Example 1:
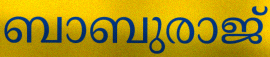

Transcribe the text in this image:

ബാബുരാജ്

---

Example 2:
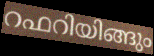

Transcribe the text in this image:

റഫറിയിങ്ങും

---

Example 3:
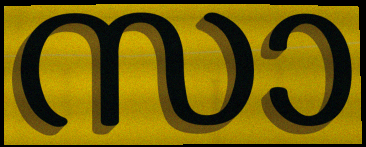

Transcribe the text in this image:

സാ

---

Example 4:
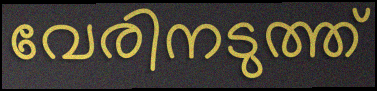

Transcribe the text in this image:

വേരിനടുത്ത്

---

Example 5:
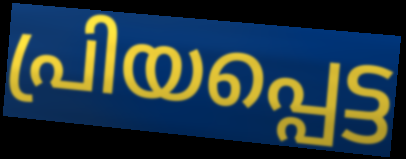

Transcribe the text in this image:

പ്രിയപ്പെട്ട